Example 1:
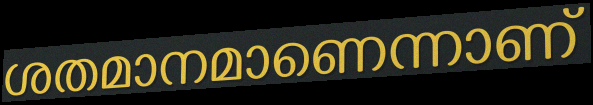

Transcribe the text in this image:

ശതമാനമാണെന്നാണ്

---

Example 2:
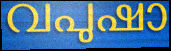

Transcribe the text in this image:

വപുഷാ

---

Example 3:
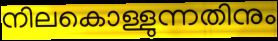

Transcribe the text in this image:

നിലകൊള്ളുന്നതിനും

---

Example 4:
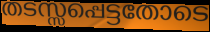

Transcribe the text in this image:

തടസ്സപ്പെട്ടതോടെ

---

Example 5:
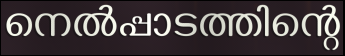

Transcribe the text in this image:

നെൽപ്പാടത്തിന്റെ